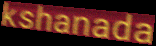
kshanada